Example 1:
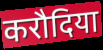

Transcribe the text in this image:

करौदिया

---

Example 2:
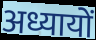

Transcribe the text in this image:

अध्यायों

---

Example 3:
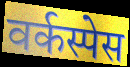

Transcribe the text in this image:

वर्कस्पेस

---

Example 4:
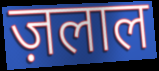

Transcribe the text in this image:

ज़लाल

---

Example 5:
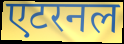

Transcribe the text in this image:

एटरनल